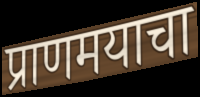
प्राणमयाचा